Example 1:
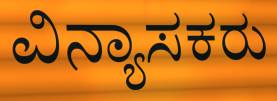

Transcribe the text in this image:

ವಿನ್ಯಾಸಕರು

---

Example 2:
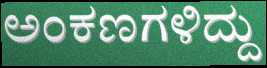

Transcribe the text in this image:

ಅಂಕಣಗಳಿದ್ದು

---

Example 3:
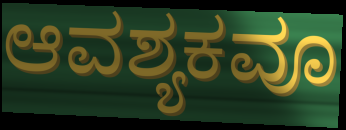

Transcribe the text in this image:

ಆವಶ್ಯಕವೂ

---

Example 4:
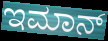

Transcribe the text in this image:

ಇಮಾನ್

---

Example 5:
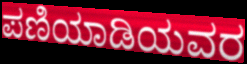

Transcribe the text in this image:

ಪಣಿಯಾಡಿಯವರ